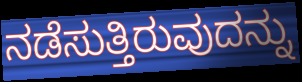
ನಡೆಸುತ್ತಿರುವುದನ್ನು